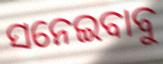
ସନେଇବାବୁ